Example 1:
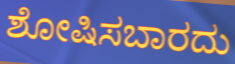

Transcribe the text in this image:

ಶೋಷಿಸಬಾರದು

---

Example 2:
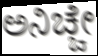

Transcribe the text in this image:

ಅನಿಚ್ಚೇ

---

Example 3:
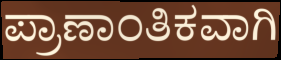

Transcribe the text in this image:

ಪ್ರಾಣಾಂತಿಕವಾಗಿ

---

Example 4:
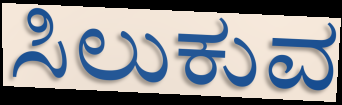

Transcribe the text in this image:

ಸಿಲುಕುವ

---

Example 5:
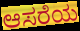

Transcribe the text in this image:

ಆಸರೆಯ